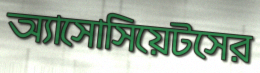
অ্যাসোসিয়েটসের